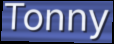
Tonny